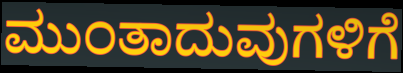
ಮುಂತಾದುವುಗಳಿಗೆ